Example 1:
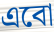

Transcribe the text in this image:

এবো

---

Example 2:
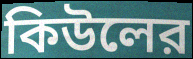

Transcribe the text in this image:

কিউলের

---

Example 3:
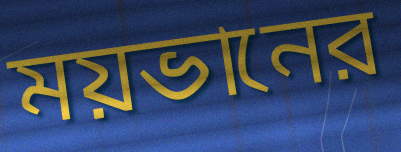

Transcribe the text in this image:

ময়ভানের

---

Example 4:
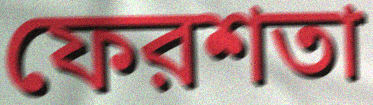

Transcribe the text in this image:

ফেরশতা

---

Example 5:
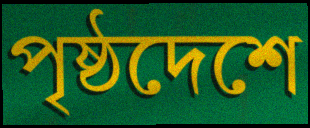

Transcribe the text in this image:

পৃষ্ঠদেশে